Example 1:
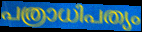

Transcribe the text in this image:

പത്രാധിപത്യം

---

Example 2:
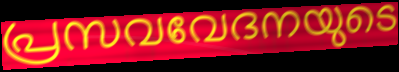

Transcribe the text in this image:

പ്രസവവേദനയുടെ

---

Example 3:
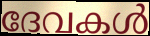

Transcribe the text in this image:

ദേവകൾ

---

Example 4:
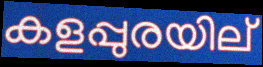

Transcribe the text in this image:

കളപ്പുരയില്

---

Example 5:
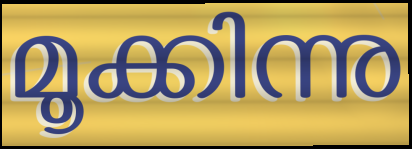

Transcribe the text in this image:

മൂക്കിന്നു